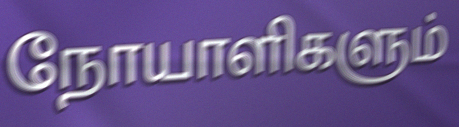
நோயாளிகளும்